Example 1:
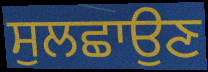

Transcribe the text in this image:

ਸੁਲਛਾਉਣ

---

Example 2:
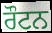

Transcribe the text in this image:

ਰੌਟਨ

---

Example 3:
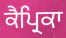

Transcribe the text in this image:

ਕੈਪ੍ਰਿਕਾ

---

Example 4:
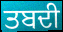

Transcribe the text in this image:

ਤਬਦੀ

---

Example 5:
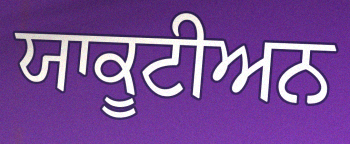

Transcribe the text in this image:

ਯਾਕੂਟੀਅਨ